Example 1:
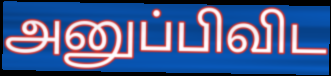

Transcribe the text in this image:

அனுப்பிவிட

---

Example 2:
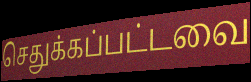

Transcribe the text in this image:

செதுக்கப்பட்டவை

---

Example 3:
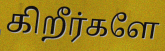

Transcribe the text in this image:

கிறீர்களே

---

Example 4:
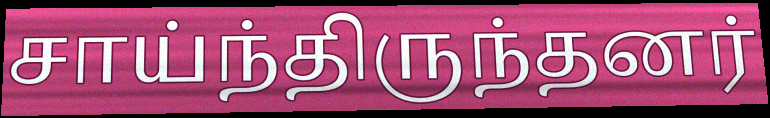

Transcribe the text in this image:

சாய்ந்திருந்தனர்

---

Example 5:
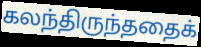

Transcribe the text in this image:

கலந்திருந்ததைக்